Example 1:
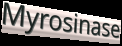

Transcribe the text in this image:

Myrosinase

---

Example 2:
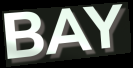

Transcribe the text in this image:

BAY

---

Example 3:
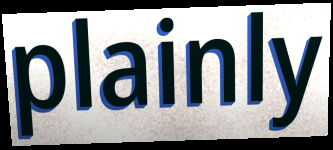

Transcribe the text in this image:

plainly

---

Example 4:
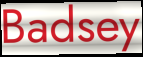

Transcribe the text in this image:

Badsey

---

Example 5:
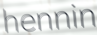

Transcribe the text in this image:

hennin